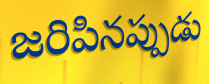
జరిపినప్పుడు